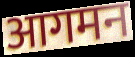
आगमन